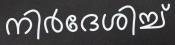
നിർദേശിച്ച്